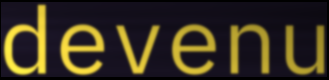
devenu